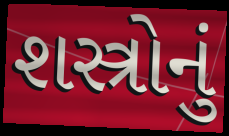
શસ્ત્રોનું